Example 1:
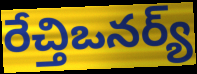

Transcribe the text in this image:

రేచ్తిఒనర్య్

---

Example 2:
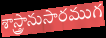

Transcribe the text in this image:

శాస్త్రానుసారముగ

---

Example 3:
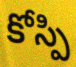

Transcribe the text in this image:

కోస్పి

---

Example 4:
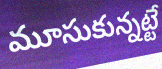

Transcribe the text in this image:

మూసుకున్నట్టే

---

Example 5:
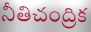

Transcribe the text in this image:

నీతిచంద్రిక